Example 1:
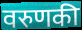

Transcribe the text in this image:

वरुणकी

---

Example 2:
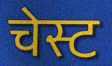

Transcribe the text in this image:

चेस्ट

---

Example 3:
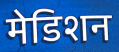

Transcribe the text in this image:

मेडिशन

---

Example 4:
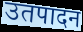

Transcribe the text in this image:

उतपादन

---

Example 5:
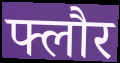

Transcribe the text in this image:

फ्लौर